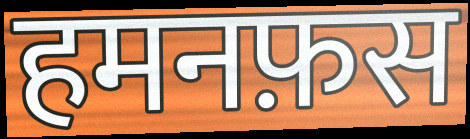
हमनफ़स